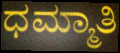
ಧಮ್ಮಾತಿ